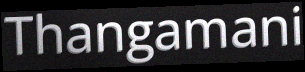
Thangamani